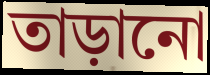
তাড়ানো